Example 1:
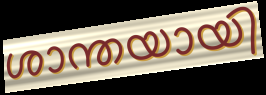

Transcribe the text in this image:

ശാന്തയായി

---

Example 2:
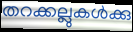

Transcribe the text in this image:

തറക്കല്ലുകൾക്കു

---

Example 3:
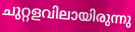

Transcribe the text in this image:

ചുറ്റളവിലായിരുന്നു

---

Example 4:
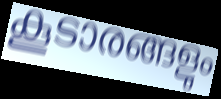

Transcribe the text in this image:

കൂടാരങ്ങളും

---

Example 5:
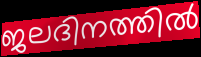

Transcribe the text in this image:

ജലദിനത്തിൽ